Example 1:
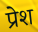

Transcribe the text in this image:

प्रेश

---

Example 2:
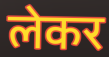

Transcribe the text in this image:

लेकर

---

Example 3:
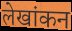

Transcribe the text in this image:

लेखांकन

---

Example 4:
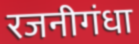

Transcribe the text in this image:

रजनीगंधा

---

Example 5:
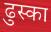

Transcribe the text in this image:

ढुस्का